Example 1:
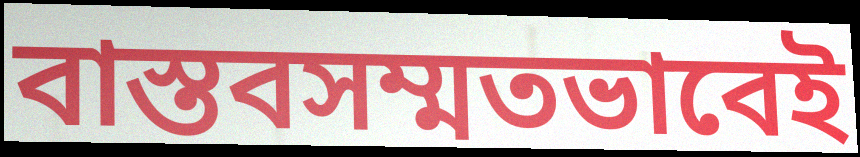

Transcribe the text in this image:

বাস্তবসম্মতভাবেই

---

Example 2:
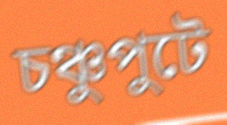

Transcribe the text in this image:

চঞ্চুপুটে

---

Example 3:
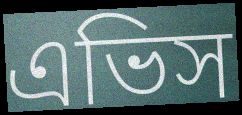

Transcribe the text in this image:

এভিস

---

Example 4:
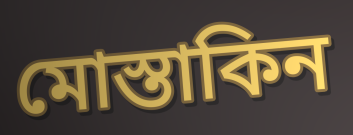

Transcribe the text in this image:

মোস্তাকিন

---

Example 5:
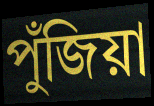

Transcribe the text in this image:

পুঁজিয়া